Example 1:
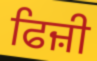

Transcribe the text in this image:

ਫਿਜ਼ੀ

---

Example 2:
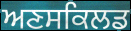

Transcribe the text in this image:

ਅਣਸਕਿਲਡ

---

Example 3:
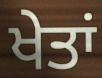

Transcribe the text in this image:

ਖੇਤਾਂ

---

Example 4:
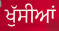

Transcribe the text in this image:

ਖੁੱਸੀਆਂ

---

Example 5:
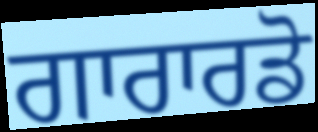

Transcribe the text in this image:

ਗਾਰਾਰਡੋ